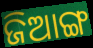
ଜିଆଙ୍ଗ